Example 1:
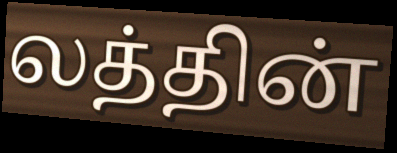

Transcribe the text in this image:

லத்தின்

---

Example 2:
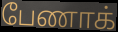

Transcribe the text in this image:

பேணாக்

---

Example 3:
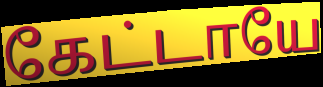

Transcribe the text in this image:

கேட்டாயே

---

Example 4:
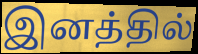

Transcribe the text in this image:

இனத்தில்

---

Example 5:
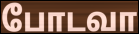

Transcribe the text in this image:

போடவா